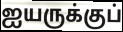
ஐயருக்குப்